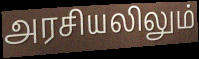
அரசியலிலும்